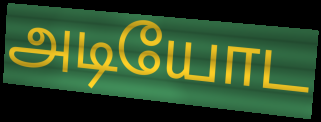
அடியோட